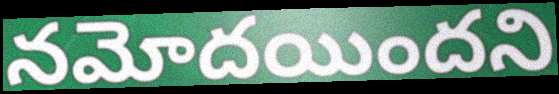
నమోదయిందని